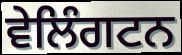
ਵੇਲਿੰਗਟਨ